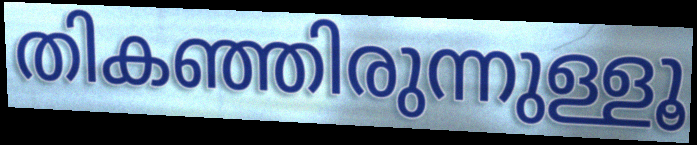
തികഞ്ഞിരുന്നുള്ളൂ